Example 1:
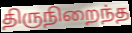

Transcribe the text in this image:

திருநிறைந்த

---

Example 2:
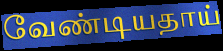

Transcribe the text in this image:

வேண்டியதாய்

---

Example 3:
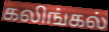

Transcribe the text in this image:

கலிங்கல்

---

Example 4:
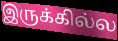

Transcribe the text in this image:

இருக்கில்ல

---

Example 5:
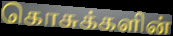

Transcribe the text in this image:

கொசுக்களின்